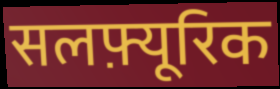
सलफ़्यूरिक